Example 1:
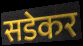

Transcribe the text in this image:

सडेकर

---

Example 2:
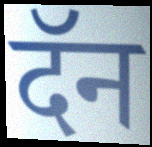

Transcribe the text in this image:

दॅन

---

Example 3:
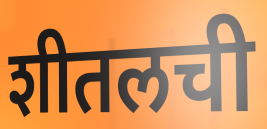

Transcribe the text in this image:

शीतलची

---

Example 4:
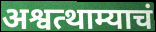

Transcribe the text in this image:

अश्वत्थाम्याचं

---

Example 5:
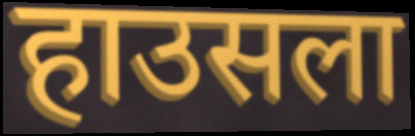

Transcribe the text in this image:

हाउसला